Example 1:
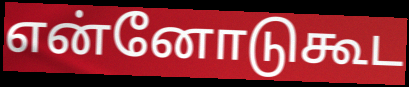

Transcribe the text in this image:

என்னோடுகூட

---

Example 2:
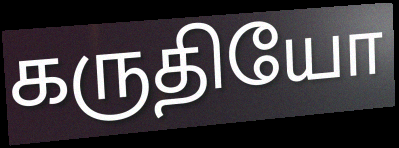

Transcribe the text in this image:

கருதியோ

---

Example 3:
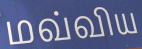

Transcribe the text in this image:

மவ்விய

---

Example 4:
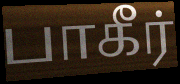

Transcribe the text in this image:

பாகீர்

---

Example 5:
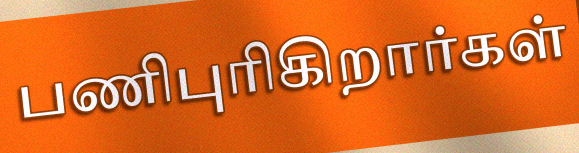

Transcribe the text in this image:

பணிபுரிகிறார்கள்